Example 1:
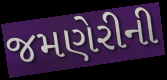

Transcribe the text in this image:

જમણેરીની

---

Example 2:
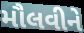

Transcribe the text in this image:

મૌલવીને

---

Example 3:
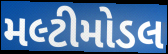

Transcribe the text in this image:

મલ્ટીમોડલ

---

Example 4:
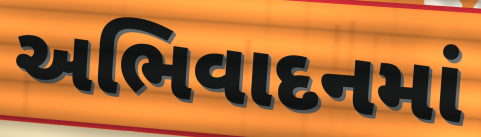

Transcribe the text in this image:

અભિવાદનમાં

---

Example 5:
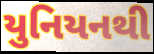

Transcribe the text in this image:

યુનિયનથી